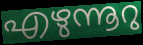
എഴുന്നൂറു